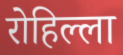
रोहिल्ला